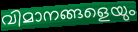
വിമാനങ്ങളെയും